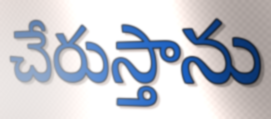
చేరుస్తాను